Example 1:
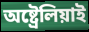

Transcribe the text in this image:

অষ্ট্ৰেলিয়াই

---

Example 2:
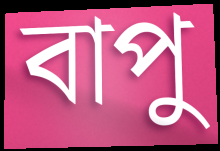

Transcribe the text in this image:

বাপু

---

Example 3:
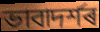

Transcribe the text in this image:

ভাবাদৰ্শৰ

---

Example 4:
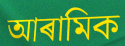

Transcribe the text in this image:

আৰামিক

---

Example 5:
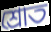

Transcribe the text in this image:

শ্ৰোত